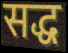
सद्ध